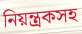
নিয়ন্ত্রকসহ